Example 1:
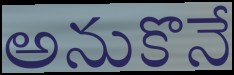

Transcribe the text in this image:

అనుకొనే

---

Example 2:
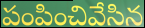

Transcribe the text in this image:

పంపించివేసిన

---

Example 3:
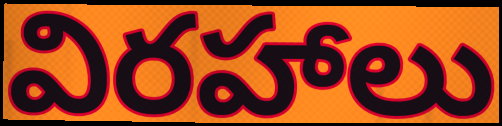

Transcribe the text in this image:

విరహాలు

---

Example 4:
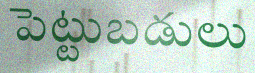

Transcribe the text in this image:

పెట్టుబడులు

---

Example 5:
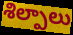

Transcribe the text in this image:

శిల్పాలు